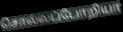
சொல்லப்போறியா